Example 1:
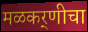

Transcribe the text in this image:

मळकर्णीचा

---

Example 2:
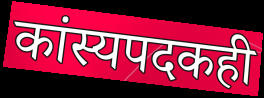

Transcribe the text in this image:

कांस्यपदकही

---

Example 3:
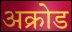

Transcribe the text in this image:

अक्रोड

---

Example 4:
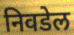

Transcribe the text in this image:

निवडेल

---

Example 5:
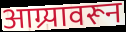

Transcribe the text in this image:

आग्र्यावरून